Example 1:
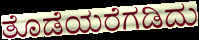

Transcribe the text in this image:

ತೊಡೆಯರೆಗಡಿದು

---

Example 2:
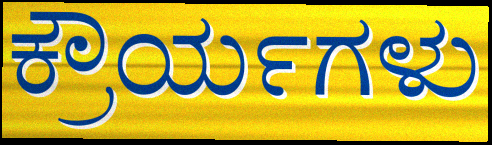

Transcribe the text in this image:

ಕ್ರೌರ್ಯಗಳು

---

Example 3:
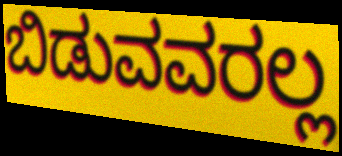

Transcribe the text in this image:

ಬಿಡುವವರಲ್ಲ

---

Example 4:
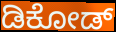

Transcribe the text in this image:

ಡಿಕೋಡ್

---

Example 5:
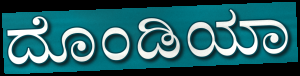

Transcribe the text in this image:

ದೊಂಡಿಯಾ